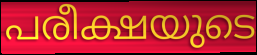
പരീക്ഷയുടെ